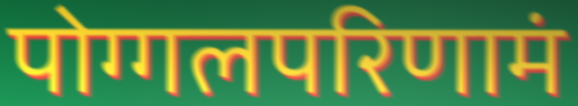
पोग्गलपरिणामं